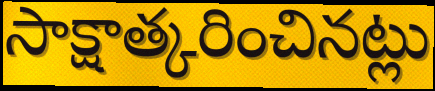
సాక్షాత్కరించినట్లు